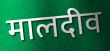
मालदीव